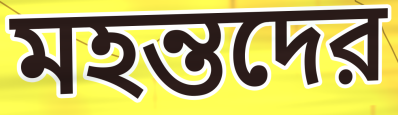
মহন্তদের